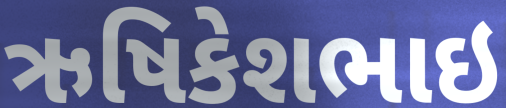
ઋષિકેશભાઇ